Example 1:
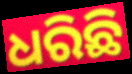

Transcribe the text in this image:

ଧରିଛି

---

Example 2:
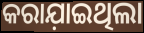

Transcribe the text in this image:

କରାଯ଼ାଇଥିଲା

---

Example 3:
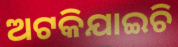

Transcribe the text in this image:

ଅଟକିଯାଇଚି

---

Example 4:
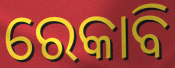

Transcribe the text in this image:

ରେକାବି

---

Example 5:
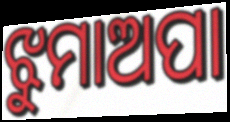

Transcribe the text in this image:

ଝୁମାଅପା